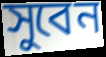
সুবেন